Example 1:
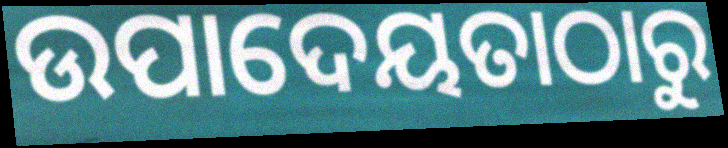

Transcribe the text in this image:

ଉପାଦେୟତାଠାରୁ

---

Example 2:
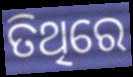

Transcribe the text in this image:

ତିଥିରେ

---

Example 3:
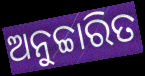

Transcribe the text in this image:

ଅନୁଚ୍ଚାରିତ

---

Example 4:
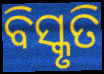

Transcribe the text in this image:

ବିସ୍କୃତି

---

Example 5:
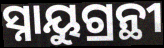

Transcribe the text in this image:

ସ୍ନାୟୁଗ୍ରନ୍ଥୀ